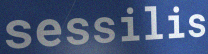
sessilis